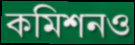
কমিশনও